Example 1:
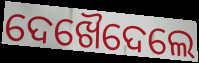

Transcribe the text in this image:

ଦେଖୈଦେଲେ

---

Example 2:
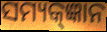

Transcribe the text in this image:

ସମ୍ୟକ୍‌ଜ୍ଞାନ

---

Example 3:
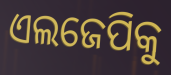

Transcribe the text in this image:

ଏଲଜେପିକୁ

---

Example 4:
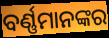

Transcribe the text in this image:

ବର୍ଣ୍ଣମାନଙ୍କର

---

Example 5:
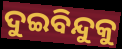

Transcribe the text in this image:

ଦୁଇବିନ୍ଦୁକୁ